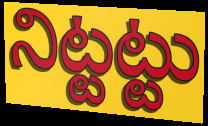
నిట్టట్టు